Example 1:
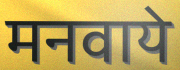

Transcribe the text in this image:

मनवाये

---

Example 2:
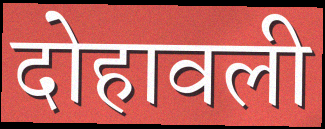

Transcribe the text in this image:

दोहावली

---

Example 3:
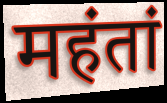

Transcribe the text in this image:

महंतां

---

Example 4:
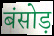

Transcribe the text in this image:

बंसोड़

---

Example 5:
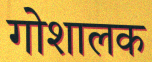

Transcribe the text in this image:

गोशालक